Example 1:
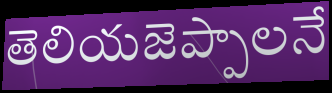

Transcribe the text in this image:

తెలియజెప్పాలనే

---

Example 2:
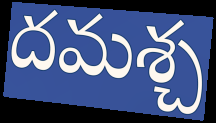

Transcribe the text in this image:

దమశ్చ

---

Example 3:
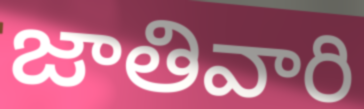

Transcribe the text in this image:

జాతివారి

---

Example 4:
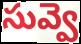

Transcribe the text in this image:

సువ్వె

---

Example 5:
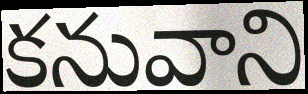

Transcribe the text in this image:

కనువాని